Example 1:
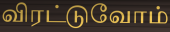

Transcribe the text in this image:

விரட்டுவோம்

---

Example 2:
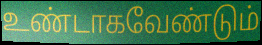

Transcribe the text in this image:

உண்டாகவேண்டும்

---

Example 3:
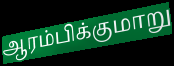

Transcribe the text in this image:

ஆரம்பிக்குமாறு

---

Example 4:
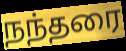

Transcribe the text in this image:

நந்தரை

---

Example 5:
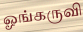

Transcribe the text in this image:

ஓங்கருவி